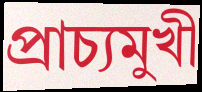
প্রাচ্যমুখী